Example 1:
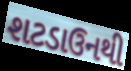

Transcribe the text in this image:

શટડાઉનથી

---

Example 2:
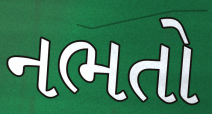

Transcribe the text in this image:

નભતો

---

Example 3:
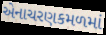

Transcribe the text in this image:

એનાચરણકમળમાં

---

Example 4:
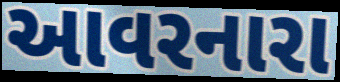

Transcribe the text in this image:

આવરનારા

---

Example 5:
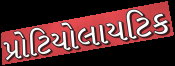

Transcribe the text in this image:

પ્રોટિયોલાયટિક